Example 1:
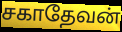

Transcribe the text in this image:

சகாதேவன்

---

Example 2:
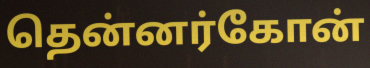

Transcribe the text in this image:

தென்னர்கோன்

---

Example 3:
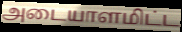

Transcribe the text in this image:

அடையாளமிட்ட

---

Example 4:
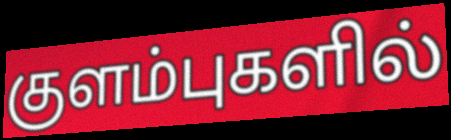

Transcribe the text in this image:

குளம்புகளில்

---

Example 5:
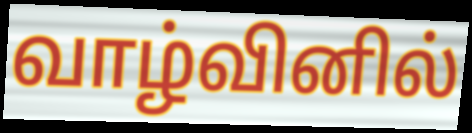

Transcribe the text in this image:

வாழ்வினில்